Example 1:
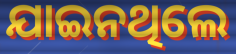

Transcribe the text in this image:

ଯାଇନଥିଲେ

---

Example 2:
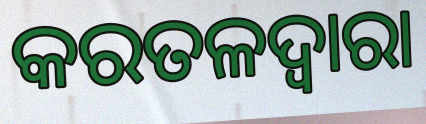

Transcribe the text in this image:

କରତଳଦ୍ଵାରା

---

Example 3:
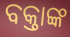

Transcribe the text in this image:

ବକ୍ତାଙ୍କ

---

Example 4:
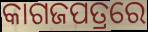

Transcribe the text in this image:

କାଗଜପତ୍ରରେ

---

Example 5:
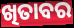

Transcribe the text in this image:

ଖିତାବର